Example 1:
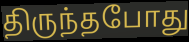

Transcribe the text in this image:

திருந்தபோது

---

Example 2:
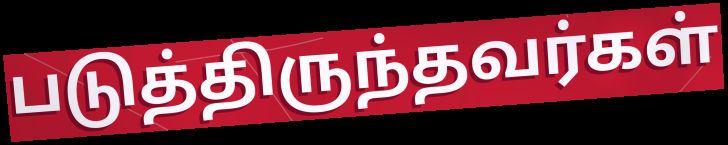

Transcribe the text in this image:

படுத்திருந்தவர்கள்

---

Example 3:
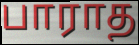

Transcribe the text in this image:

பாராத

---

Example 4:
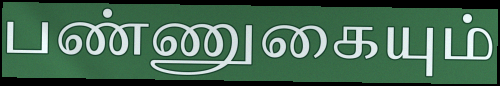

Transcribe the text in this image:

பண்ணுகையும்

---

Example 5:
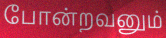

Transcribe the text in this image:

போன்றவனும்